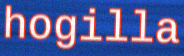
hogilla